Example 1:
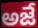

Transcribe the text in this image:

అజే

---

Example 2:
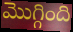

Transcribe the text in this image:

మొగ్గింది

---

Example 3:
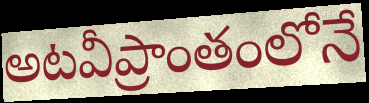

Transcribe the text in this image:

అటవీప్రాంతంలోనే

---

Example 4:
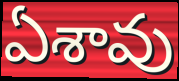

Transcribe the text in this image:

ఏశావు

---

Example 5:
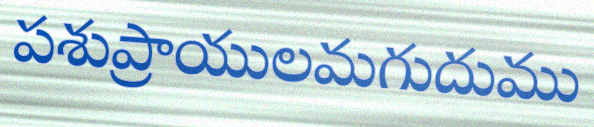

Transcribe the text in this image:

పశుప్రాయులమగుదుము